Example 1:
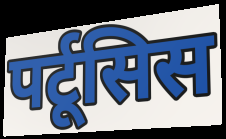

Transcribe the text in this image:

पर्टूसिस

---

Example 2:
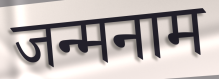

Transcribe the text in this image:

जन्मनाम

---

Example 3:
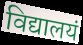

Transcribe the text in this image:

विद्यालयं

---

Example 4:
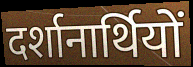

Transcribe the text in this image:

दर्शानार्थियों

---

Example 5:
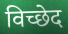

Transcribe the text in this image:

विच्छेद